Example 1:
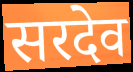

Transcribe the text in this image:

सरदेव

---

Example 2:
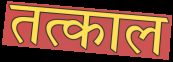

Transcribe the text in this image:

तत्‍काल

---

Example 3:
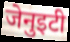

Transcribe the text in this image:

जेनुइटी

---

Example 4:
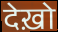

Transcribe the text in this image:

देख़ो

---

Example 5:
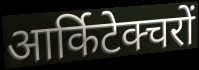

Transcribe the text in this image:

आर्किटेक्चरों